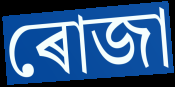
ৰোজা